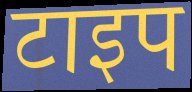
टाइप